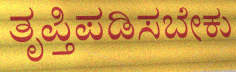
ತೃಪ್ತಿಪಡಿಸಬೇಕು